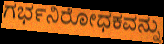
ಗರ್ಭನಿರೋಧಕವನ್ನು